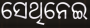
ସେଥିନେଇ